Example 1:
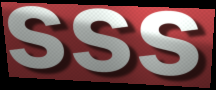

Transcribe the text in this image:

sss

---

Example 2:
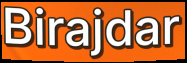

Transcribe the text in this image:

Birajdar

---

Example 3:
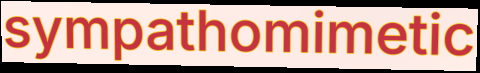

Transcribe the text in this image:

sympathomimetic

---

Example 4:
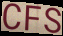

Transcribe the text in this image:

CFS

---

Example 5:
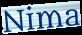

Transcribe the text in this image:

Nima